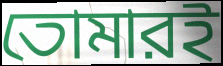
তোমারই